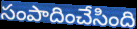
సంపాదించేసింది